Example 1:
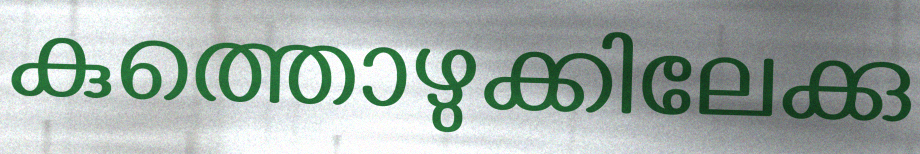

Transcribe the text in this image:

കുത്തൊഴുക്കിലേക്കു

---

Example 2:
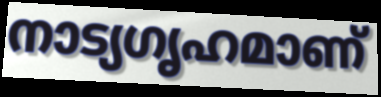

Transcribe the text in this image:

നാട്യഗൃഹമാണ്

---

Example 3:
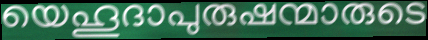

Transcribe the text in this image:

യെഹൂദാപുരുഷന്മാരുടെ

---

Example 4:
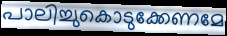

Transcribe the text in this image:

പാലിച്ചുകൊടുക്കേണമേ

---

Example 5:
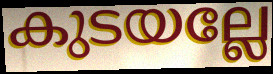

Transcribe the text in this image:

കുടയല്ലേ